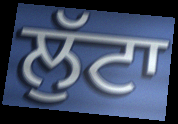
ਲੁੱਟਾ